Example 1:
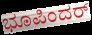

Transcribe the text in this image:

ಭೂಪಿಂದರ್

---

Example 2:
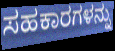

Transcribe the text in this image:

ಸಹಕಾರಗಳನ್ನು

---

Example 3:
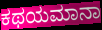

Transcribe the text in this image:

ಕಥಯಮಾನಾ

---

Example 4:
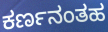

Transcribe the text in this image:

ಕರ್ಣನಂತಹ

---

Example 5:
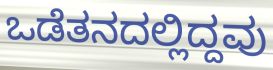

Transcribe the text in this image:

ಒಡೆತನದಲ್ಲಿದ್ದವು